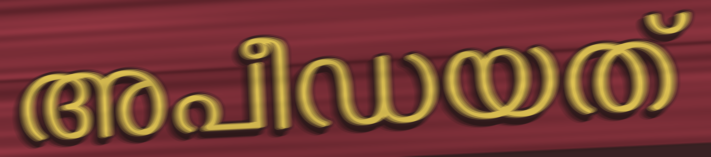
അപീഡയത്